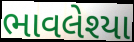
ભાવલેશ્યા